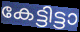
കേട്ടിട്ടാ